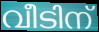
വീടിന്